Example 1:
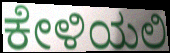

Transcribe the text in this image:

ಕೇಳಿಯಲಿ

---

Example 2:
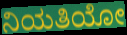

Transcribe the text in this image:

ನಿಯತಿಯೋ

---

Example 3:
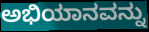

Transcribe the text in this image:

ಅಭಿಯಾನವನ್ನು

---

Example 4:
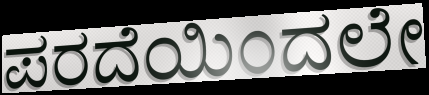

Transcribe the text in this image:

ಪರದೆಯಿಂದಲೇ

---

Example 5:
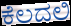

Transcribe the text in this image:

ಕೆಲದಲಿ